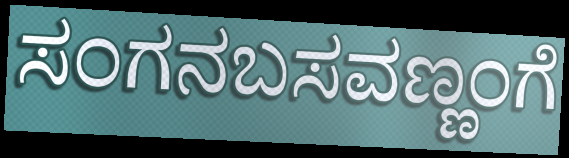
ಸಂಗನಬಸವಣ್ಣಂಗೆ